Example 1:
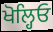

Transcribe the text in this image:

ਖੋਲ੍ਹ੍ਹਿਓ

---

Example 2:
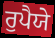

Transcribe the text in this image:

ਰੁਪੈਯੇ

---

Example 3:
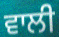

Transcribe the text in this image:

ਵਾਲੀ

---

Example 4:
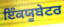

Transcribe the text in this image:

ਇੰਕਯੂਬੇਟਰ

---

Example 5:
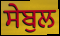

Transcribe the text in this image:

ਸੇਬੁਲ